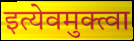
इत्येवमुक्त्वा